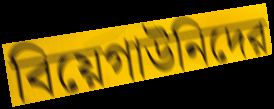
বিয়েগাউনিদের